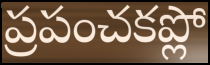
ప్రపంచకప్లో